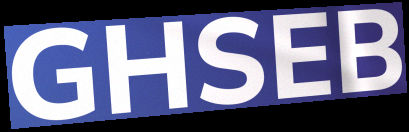
GHSEB